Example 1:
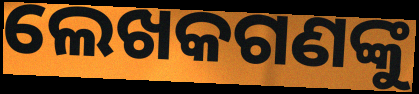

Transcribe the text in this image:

ଲେଖକଗଣଙ୍କୁ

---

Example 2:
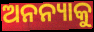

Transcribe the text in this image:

ଅନନ୍ୟାକୁ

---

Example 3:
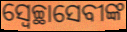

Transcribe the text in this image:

ସ୍ୱେଚ୍ଛାସେବୀଙ୍କ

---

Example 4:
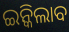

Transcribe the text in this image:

ଇନ୍କିଲାବ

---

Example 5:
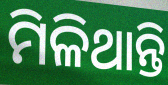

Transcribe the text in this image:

ମିଳିଥାନ୍ତି